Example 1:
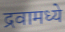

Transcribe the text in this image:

द्रवामध्ये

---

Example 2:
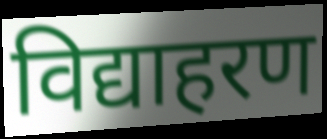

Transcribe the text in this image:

विद्याहरण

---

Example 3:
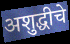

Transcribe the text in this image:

अशुद्धीचे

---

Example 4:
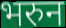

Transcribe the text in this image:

भरुन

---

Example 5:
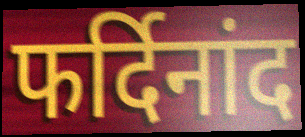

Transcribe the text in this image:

फर्दिनांद